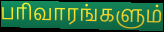
பரிவாரங்களும்